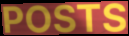
POSTS